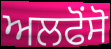
ਅਲਫੋਂਸੋ